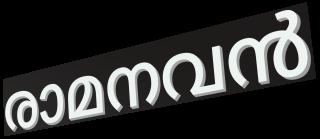
രാമനവൻ